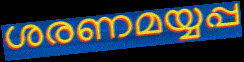
ശരണമയ്യപ്പ